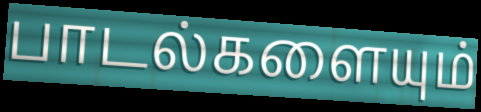
பாடல்களையும்